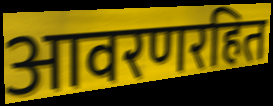
आवरणरहित